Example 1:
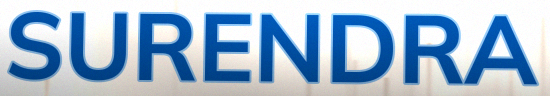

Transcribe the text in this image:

SURENDRA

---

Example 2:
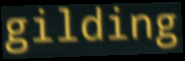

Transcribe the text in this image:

gilding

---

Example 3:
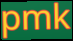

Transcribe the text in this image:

pmk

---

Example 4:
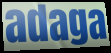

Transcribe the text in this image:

adaga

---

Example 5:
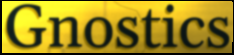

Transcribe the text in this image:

Gnostics